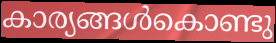
കാര്യങ്ങൾകൊണ്ടു